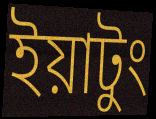
ইয়াটুং